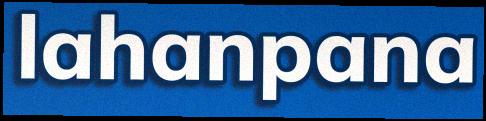
lahanpana